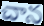
చాన